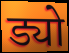
ड्यो